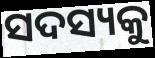
ସଦସ୍ୟକୁ